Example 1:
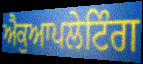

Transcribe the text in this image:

ਐਕੁਆਪਲੇਟਿੰਗ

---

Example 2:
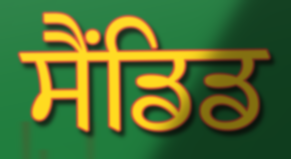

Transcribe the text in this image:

ਸੈਂਡਿਡ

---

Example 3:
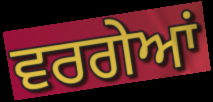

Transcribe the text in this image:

ਵਰਗੇਆਂ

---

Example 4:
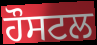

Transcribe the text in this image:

ਹੌਸਟਲ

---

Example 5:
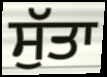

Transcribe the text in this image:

ਸੁੱਤਾ